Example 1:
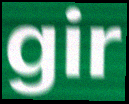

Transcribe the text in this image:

gir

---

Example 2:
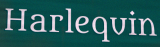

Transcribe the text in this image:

Harlequin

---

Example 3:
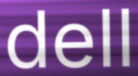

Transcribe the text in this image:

dell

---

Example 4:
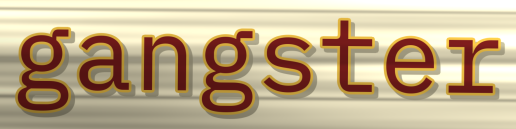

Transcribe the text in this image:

gangster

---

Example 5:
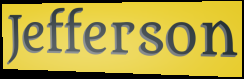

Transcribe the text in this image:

Jefferson